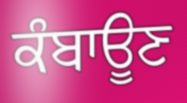
ਕੰਬਾਊਣ